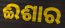
ଈଶାର